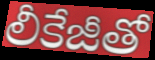
లీకేజీతో